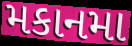
મકાનમા